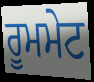
ਰੂਮਮੇਟ